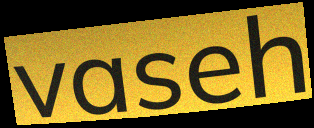
vaseh